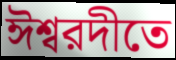
ঈশ্বরদীতে